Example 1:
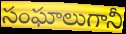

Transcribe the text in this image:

సంఘాలుగానీ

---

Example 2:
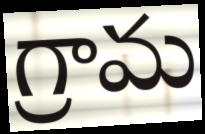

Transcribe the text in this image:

గ్రామ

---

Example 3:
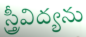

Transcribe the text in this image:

స్త్రీవిద్యను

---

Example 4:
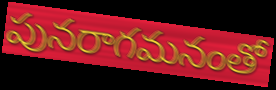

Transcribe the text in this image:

పునరాగమనంతో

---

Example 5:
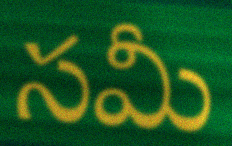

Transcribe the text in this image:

సమీ